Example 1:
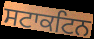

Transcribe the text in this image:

ਸਟਾਕਟਿਨ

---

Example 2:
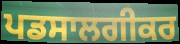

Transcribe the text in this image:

ਪਡਸਾਲਗੀਕਰ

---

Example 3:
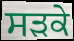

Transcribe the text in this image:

ਸਡ਼ਕੇ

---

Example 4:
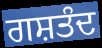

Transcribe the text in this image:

ਗਸ਼ਤੰਦ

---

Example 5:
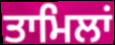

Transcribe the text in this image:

ਤਾਮਿਲਾਂ